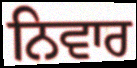
ਨਿਵਾਰ